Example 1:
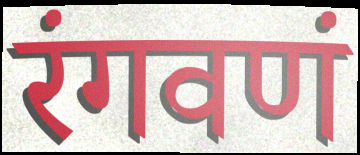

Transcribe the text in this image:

रंगवणं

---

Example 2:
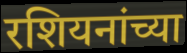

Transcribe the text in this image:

रशियनांच्या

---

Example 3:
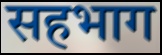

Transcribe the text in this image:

सहभाग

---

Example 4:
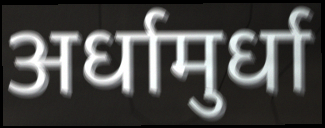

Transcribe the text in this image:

अर्धामुर्धा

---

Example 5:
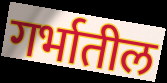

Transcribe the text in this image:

गर्भातील